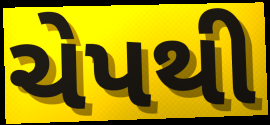
ચેપથી